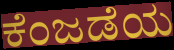
ಕೆಂಜಡೆಯ